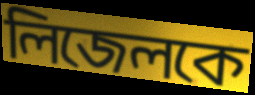
লিজেলকে